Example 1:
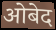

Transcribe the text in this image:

ओबेद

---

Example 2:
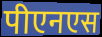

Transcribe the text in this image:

पीएनएस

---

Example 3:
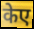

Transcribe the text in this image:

केए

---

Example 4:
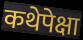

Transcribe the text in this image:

कथेपेक्षा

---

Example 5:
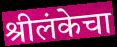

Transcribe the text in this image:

श्रीलंकेचा